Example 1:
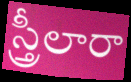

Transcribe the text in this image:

స్త్రీలారా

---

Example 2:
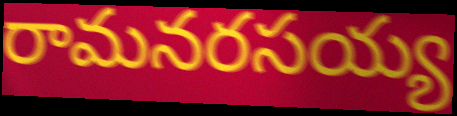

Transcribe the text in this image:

రామనరసయ్య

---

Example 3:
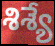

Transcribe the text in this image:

శిశ్యే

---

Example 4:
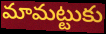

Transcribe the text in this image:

మామట్టుకు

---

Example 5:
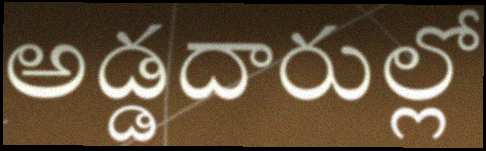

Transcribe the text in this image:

అడ్డదారుల్లో